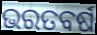
ଭରତବର୍ଷ